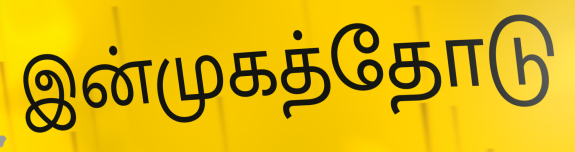
இன்முகத்தோடு